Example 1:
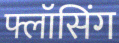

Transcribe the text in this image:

फ्लॉसिंग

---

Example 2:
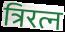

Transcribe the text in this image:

त्रिरत्न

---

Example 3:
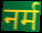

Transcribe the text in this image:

नर्म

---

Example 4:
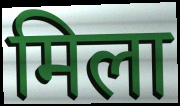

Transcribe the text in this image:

मिला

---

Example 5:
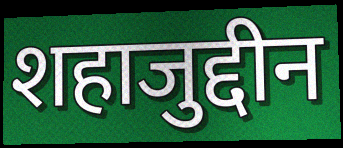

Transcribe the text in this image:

शहाजुद्दीन